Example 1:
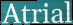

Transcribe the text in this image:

Atrial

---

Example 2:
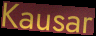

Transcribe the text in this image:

Kausar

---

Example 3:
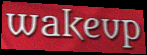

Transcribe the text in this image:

wakeup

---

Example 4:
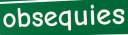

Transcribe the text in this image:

obsequies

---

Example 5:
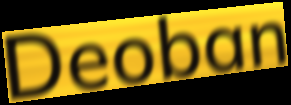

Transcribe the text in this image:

Deoban